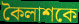
কৈলাশকে